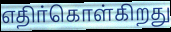
எதிர்கொள்கிறது